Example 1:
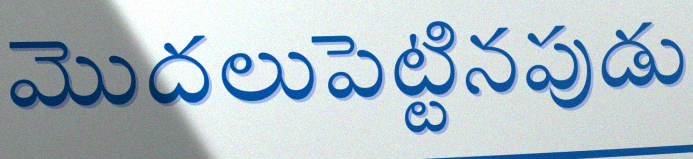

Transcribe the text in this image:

మొదలుపెట్టినపుడు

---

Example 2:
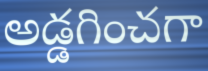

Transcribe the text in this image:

అడ్డగించగా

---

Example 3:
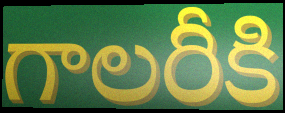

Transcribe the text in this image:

గాలరీకి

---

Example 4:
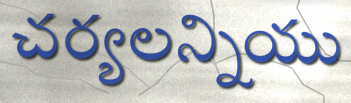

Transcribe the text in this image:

చర్యలన్నియు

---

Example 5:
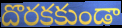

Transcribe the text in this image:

దొరకకుండా